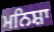
ਮਨਿਸ਼ਾ